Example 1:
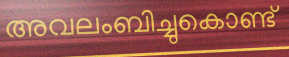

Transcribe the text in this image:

അവലംബിച്ചുകൊണ്ട്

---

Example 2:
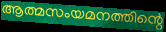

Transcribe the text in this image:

ആത്മസംയമനത്തിന്റെ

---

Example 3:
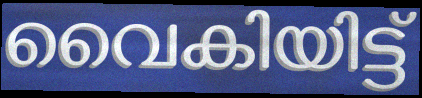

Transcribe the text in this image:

വൈകിയിട്ട്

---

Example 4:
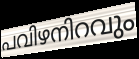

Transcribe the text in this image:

പവിഴനിറവും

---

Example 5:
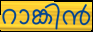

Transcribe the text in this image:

റാങ്കിൻ